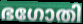
ഭഗോതി